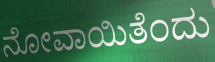
ನೋವಾಯಿತೆಂದು